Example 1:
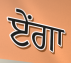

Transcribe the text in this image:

ਏਂਗਾ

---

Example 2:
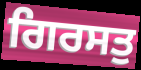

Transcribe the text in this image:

ਗਿਰਸਤੁ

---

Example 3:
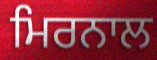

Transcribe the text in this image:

ਮਿਰਨਾਲ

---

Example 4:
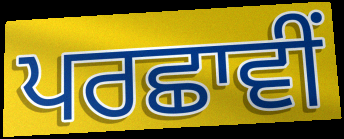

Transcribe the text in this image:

ਪਰਛਾਵੀਂ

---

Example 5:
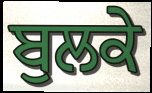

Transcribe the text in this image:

ਬੁਲਕੇ